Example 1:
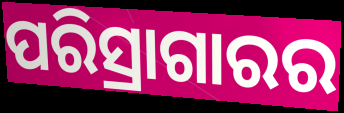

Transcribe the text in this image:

ପରିସ୍ରାଗାରର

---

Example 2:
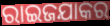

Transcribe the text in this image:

ରାଇଜଯାକର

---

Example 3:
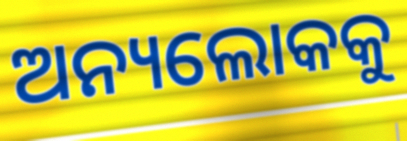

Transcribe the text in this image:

ଅନ୍ୟଲୋକକୁ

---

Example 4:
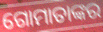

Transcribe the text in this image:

ଗୋମାତାଙ୍କର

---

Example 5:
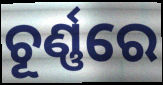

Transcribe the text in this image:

ଚୂର୍ଣ୍ଣରେ